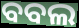
ବବଲ